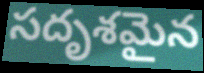
సదృశమైన